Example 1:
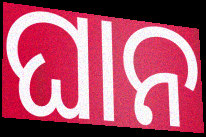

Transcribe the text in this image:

ଘାନ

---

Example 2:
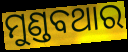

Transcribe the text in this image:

ମୁଣ୍ଡବଥାର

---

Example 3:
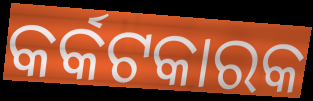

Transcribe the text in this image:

କର୍କଟକାରକ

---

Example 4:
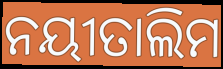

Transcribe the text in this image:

ନୟୀତାଲିମ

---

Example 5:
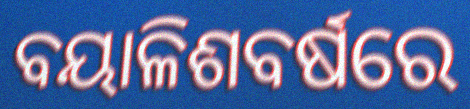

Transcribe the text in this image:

ବୟାଳିଶବର୍ଷରେ